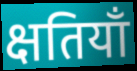
क्षतियाँ